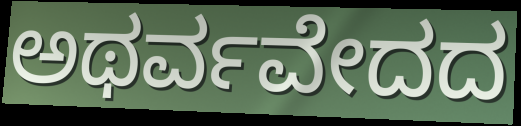
ಅಥರ್ವವೇದದ